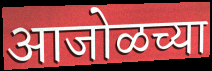
आजोळच्या